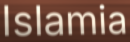
Islamia